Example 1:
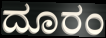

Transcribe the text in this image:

ದೂರಂ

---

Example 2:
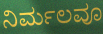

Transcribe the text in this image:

ನಿರ್ಮಲವೂ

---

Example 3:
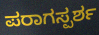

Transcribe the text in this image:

ಪರಾಗಸ್ಪರ್ಶ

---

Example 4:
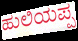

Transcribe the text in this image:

ಹುಲಿಯಪ್ಪ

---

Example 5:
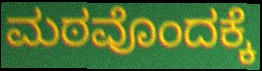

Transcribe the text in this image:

ಮಠವೊಂದಕ್ಕೆ